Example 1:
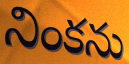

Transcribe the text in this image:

నింకను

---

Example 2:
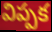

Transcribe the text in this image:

విప్పక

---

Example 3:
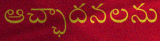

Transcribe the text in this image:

ఆచ్ఛాదనలను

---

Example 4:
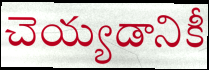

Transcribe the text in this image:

చెయ్యడానికీ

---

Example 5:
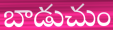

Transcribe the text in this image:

బాడుచుం